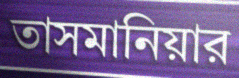
তাসমানিয়ার